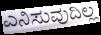
ಎನಿಸುವುದಿಲ್ಲ